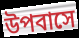
উপবাসে